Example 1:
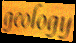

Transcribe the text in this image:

geology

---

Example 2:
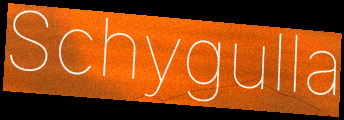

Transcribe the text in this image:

Schygulla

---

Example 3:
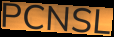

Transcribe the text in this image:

PCNSL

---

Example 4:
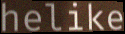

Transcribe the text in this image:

helike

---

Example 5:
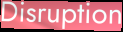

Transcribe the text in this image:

Disruption